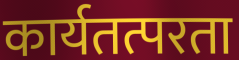
कार्यतत्परता